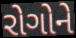
રોગોને